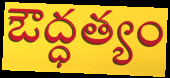
ఔద్ధత్యం